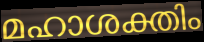
മഹാശക്തിം